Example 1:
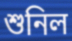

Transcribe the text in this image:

শুনিল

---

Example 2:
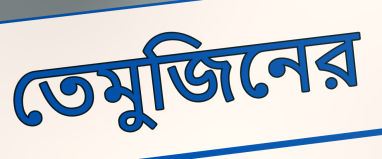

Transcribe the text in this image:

তেমুজিনের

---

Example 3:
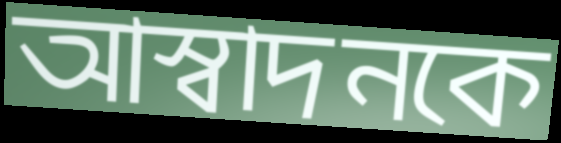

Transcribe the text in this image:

আস্বাদনকে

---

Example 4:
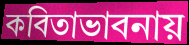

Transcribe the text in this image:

কবিতাভাবনায়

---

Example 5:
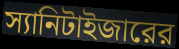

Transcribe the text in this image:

স্যানিটাইজারের